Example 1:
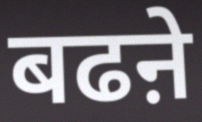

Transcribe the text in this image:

बढऩे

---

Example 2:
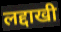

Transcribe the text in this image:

लद्दाखी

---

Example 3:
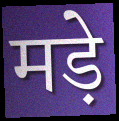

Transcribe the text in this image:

मड़े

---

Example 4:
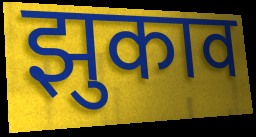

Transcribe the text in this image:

झुकाव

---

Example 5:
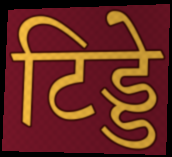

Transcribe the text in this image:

टिड्डे